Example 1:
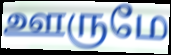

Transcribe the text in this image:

ஊருமே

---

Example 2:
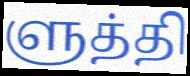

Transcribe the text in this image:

ளுத்தி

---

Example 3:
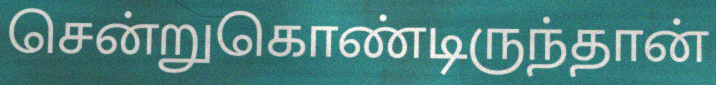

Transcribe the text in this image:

சென்றுகொண்டிருந்தான்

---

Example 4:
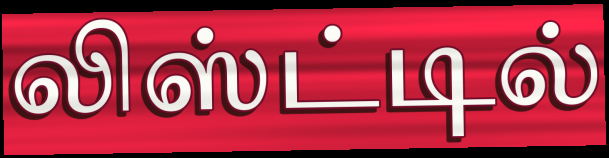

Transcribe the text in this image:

லிஸ்ட்டில்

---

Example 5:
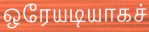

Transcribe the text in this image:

ஒரேயடியாகச்